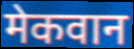
मेकवान